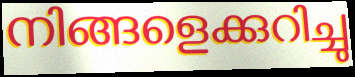
നിങ്ങളെക്കുറിച്ചു